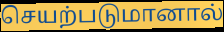
செயற்படுமானால்